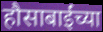
हौसाबाईंच्या